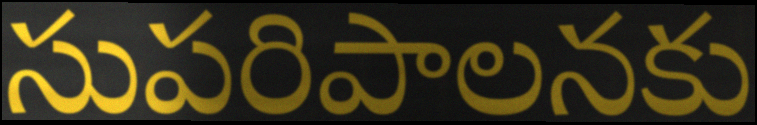
సుపరిపాలనకు